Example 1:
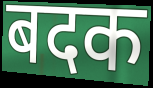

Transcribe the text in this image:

बदक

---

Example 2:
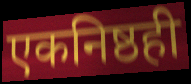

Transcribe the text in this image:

एकनिष्ठही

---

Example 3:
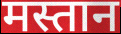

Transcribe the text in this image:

मस्तान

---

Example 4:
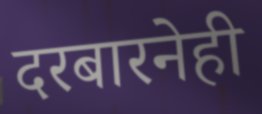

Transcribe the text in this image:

दरबारनेही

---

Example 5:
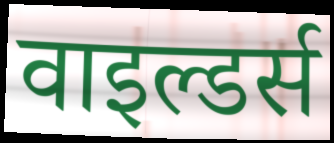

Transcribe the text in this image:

वाइल्डर्स